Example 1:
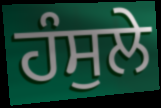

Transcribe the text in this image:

ਹੰਸੁਲੇ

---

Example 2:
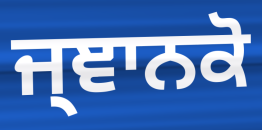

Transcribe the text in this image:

ਜ੍ਞਾਨਕੋ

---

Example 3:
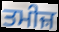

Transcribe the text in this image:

ਤਮੀਜ਼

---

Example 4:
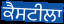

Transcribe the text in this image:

ਕੈਸਟੀਲਾ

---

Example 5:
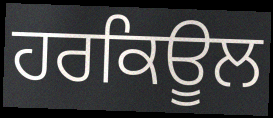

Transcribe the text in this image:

ਹਰਕਿਊਲ